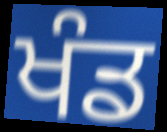
ਖੰਡ